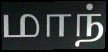
மாந்